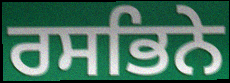
ਰਸਭਿਨੇ